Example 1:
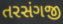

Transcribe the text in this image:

તરસંગજી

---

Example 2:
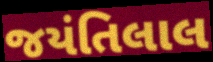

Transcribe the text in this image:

જયંતિલાલ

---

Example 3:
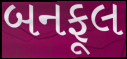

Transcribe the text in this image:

બનફૂલ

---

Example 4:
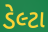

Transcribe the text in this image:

ડેલ્ટા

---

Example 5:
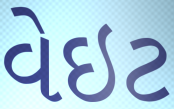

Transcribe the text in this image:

વેઇટ